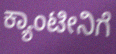
ಕ್ಯಾಂಟೀನಿಗೆ